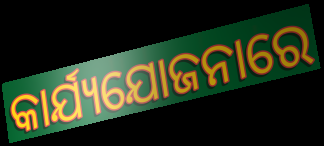
କାର୍ଯ୍ୟଯୋଜନାରେ